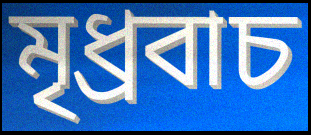
মৃধ্রবাচ